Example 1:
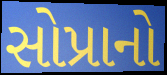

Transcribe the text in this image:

સોપ્રાનો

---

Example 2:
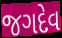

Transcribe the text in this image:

જગદેવ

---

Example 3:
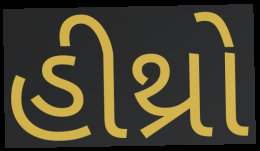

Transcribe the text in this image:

હીથ્રો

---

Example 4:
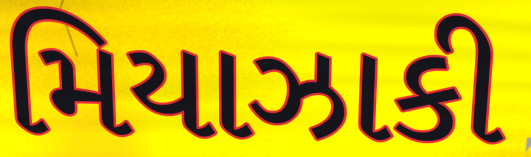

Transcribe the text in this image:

મિયાઝાકી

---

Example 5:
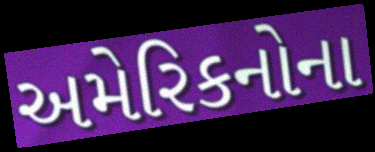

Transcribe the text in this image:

અમેરિકનોના